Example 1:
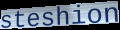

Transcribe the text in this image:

steshion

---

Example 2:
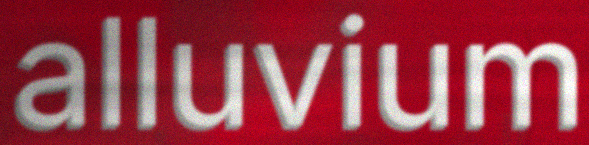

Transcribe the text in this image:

alluvium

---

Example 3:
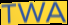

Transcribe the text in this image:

TWA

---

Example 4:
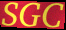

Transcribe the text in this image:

SGC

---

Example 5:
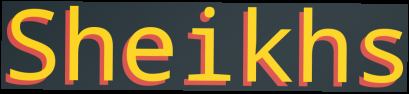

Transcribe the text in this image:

Sheikhs